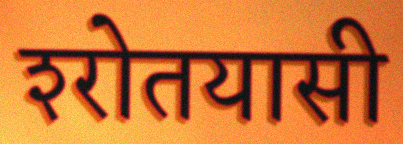
श्रोतयासी